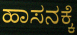
ಹಾಸನಕ್ಕೆ